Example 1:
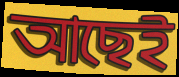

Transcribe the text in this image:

আছেই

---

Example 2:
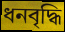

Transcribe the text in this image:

ধনবৃদ্ধি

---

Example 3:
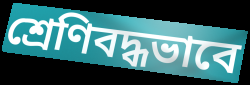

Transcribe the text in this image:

শ্রেণিবদ্ধভাবে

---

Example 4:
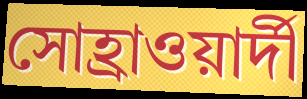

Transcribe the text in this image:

সোহ্রাওয়ার্দী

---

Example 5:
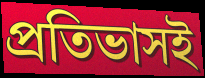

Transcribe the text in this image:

প্রতিভাসই